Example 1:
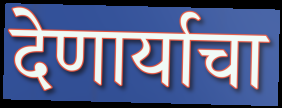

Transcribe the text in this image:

देणार्याचा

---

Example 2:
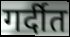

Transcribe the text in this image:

गर्दीत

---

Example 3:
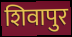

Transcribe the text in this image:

शिवापुर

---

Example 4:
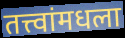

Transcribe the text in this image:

तत्त्वांमधला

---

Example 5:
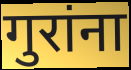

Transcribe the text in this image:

गुरांना